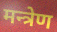
मन्त्रेण